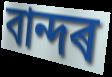
বান্দৰ